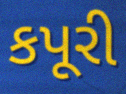
કપૂરી